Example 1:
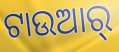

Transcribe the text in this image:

ଟାଉଆର୍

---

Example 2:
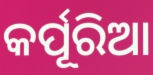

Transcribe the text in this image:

କର୍ପୂରିଆ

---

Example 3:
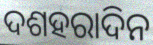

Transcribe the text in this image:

ଦଶହରାଦିନ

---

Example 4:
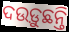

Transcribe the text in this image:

ଦଉଡ଼ୁଛନ୍ତି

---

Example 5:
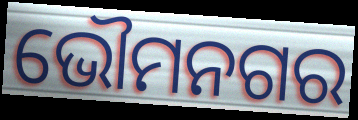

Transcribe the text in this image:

ଭୌମନଗର